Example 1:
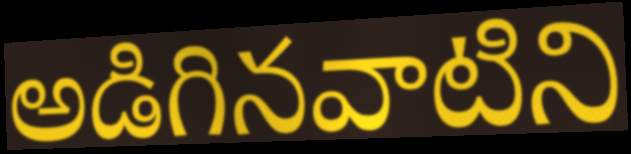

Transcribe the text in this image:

అడిగినవాటిని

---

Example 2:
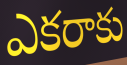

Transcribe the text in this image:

ఎకరాకు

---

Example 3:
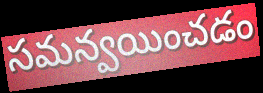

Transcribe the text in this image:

సమన్వయించడం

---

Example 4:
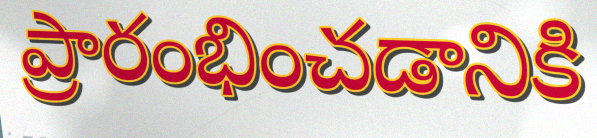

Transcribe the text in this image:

ప్రారంభించడానికి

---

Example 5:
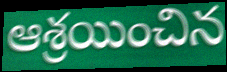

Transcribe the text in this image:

ఆశ్రయించిన